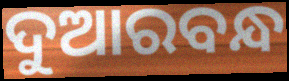
ଦୁଆରବନ୍ଧ